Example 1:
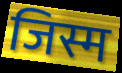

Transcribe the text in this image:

जिस्म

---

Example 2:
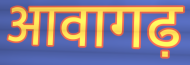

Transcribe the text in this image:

आवागढ़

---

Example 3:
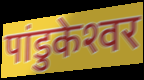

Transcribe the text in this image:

पांडुकेश्वर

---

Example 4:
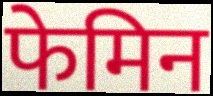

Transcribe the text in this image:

फेमिन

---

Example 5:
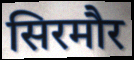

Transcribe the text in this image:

सिरमौर